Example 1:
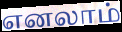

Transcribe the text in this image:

எனலாம்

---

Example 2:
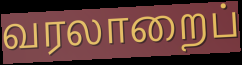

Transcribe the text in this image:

வரலாறைப்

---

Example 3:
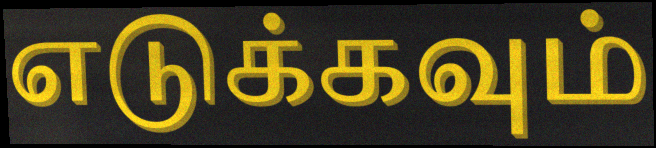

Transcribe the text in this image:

எடுக்கவும்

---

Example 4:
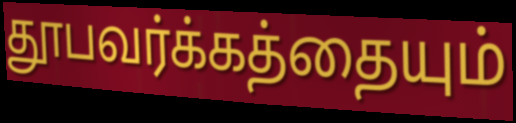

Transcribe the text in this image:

தூபவர்க்கத்தையும்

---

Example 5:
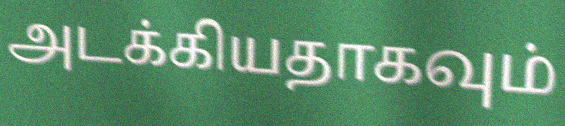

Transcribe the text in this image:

அடக்கியதாகவும்